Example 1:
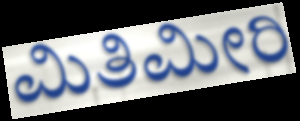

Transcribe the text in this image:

ಮಿತಿಮೀರಿ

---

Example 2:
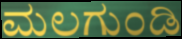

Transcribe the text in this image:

ಮಲಗುಂಡಿ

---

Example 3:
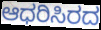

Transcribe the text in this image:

ಆಧರಿಸಿರದ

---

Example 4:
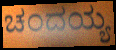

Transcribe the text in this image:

ಚಂದಯ್ಯ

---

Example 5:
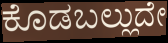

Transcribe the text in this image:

ಕೊಡಬಲ್ಲುದೇ